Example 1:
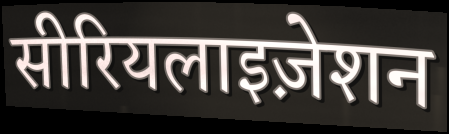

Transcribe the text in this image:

सीरियलाइज़ेशन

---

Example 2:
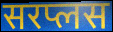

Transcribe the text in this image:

सरप्लस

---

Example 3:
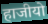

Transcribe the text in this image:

हाजीयो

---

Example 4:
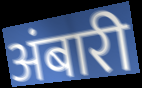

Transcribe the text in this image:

अंबारी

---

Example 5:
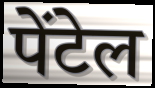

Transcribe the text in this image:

पेंटेल